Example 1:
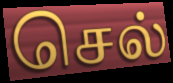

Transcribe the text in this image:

செல்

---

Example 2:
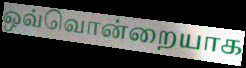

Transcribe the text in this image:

ஒவ்வொன்றையாக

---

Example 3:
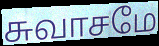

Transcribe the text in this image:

சுவாசமே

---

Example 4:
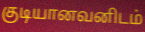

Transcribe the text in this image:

குடியானவனிடம்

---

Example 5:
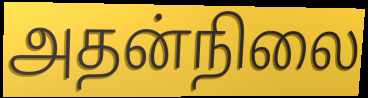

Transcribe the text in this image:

அதன்நிலை